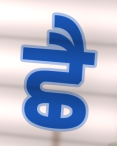
ਛੈ